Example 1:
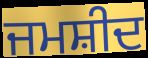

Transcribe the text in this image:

ਜਮਸ਼ੀਦ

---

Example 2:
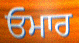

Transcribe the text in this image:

ਓਮਾਰ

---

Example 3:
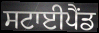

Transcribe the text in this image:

ਸਟਾਈਪੈਂਡ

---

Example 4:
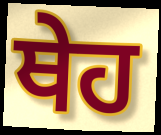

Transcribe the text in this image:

ਥੇਹ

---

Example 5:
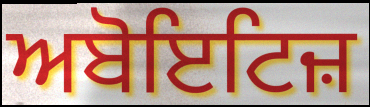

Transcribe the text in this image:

ਅਬੋਇਟਿਜ਼